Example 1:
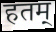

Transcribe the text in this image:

हतम्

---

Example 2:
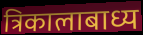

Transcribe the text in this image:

त्रिकालाबाध्य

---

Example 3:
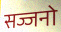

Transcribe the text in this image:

सज्जनो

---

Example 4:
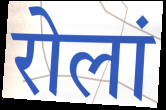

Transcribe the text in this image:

रोलां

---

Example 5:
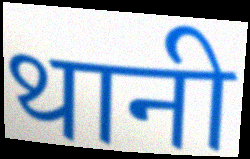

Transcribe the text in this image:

थानी